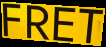
FRET